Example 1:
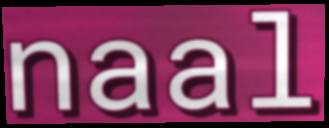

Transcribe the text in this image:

naal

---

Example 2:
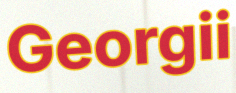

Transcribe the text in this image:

Georgii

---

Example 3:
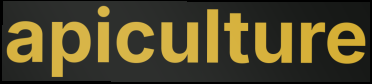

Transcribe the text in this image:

apiculture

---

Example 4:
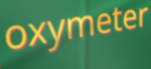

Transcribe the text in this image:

oxymeter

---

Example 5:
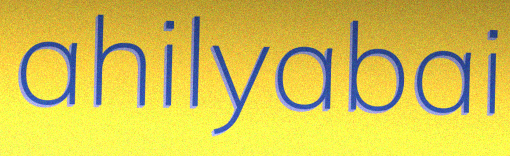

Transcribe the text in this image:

ahilyabai